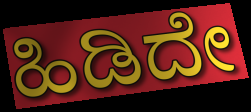
ಹಿಡಿದೇ